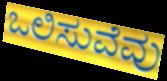
ಒಲಿಸುವೆವು